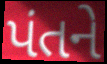
પંતને